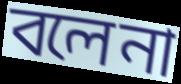
বলেনা